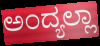
ಅಂದ್ಯಲ್ಲಾ